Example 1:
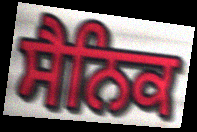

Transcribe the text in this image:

ਸੈਨਿਕ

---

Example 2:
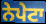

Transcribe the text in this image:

ਨੇਪੇਟਾ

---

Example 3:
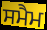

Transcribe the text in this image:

ਸਮੈਮ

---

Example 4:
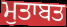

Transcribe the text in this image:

ਮੁਤਾਬਤ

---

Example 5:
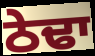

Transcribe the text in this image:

ਠੇਢਾ